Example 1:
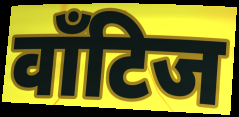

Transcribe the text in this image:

वाँटिज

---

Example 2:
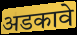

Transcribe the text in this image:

अडकावे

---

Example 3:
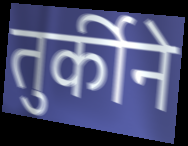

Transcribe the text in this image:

तुर्कीने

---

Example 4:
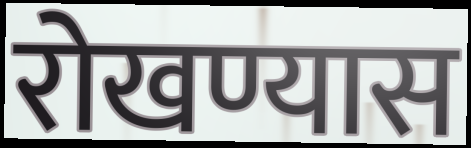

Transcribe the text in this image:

रोखण्यास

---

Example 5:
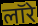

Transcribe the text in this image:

लॉरे